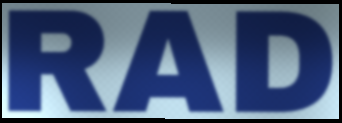
RAD